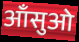
आँसुओ